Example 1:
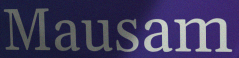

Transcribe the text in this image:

Mausam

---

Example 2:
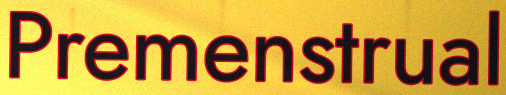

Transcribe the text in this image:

Premenstrual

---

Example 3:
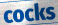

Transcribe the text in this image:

cocks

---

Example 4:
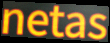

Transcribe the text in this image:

netas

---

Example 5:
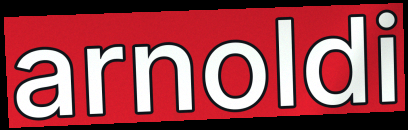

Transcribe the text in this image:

arnoldi